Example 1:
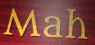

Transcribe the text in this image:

Mah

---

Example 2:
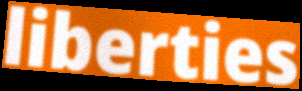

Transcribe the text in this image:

liberties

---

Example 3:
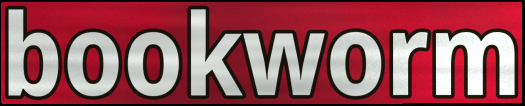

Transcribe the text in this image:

bookworm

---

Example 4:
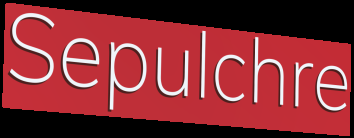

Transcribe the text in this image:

Sepulchre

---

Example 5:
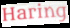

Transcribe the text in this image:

Haring